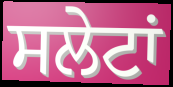
ਸਲੇਟਾਂ